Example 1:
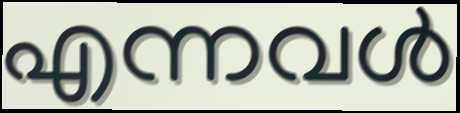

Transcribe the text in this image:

എന്നവൾ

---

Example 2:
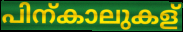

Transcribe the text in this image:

പിന്കാലുകള്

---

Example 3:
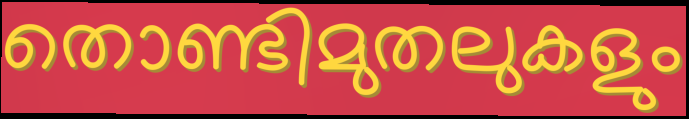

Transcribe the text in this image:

തൊണ്ടിമുതലുകളും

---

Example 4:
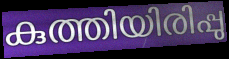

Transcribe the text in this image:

കുത്തിയിരിപ്പു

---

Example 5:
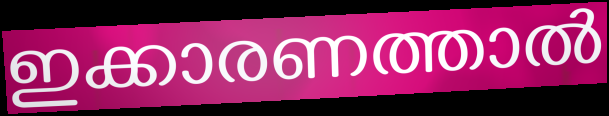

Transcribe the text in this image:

ഇക്കാരണത്താൽ